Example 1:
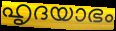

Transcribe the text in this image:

ഹൃദയാഭം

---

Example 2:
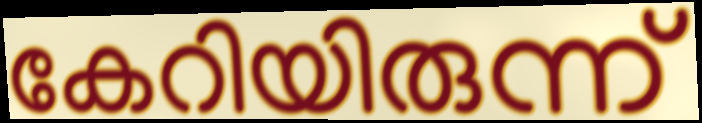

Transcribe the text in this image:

കേറിയിരുന്ന്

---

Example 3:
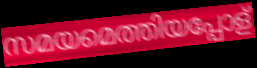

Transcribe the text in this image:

സമയമെത്തിയപ്പോള്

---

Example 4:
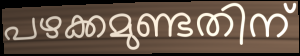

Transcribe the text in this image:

പഴക്കമുണ്ടതിന്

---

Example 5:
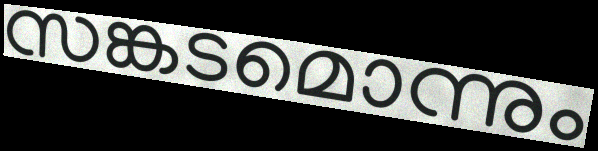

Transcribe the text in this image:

സങ്കടമൊന്നും